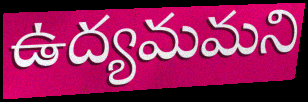
ఉద్యమమని